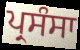
ਪ੍ਰਸੰਸਾ